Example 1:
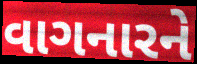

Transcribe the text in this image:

વાગનારને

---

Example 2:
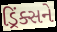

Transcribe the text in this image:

ડ્રિંક્સને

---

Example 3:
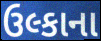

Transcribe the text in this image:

ઉલ્કાના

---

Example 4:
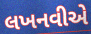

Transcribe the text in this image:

લખનવીએ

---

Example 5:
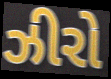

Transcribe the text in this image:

ઝીરો